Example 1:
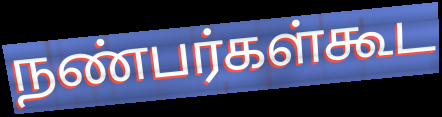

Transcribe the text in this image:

நண்பர்கள்கூட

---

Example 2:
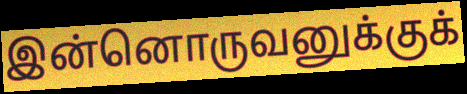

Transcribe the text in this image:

இன்னொருவனுக்குக்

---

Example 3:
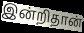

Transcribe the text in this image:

இன்றிதான்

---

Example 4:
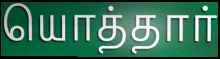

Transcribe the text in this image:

யொத்தார்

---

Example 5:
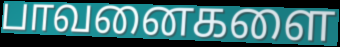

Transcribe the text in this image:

பாவனைகளை